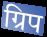
ग्रिप